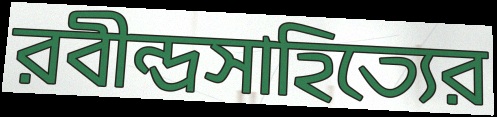
রবীন্দ্রসাহিত্যের